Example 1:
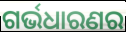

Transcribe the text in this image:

ଗର୍ଭଧାରଣର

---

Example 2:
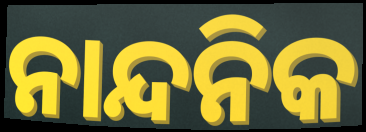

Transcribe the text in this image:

ନାନ୍ଦନିକ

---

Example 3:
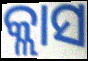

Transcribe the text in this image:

କ୍ଲାସ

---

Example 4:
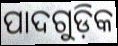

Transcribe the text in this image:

ପାଦଗୁଡ଼ିକ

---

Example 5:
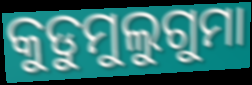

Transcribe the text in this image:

କୁଡୁମୁଲୁଗୁମା